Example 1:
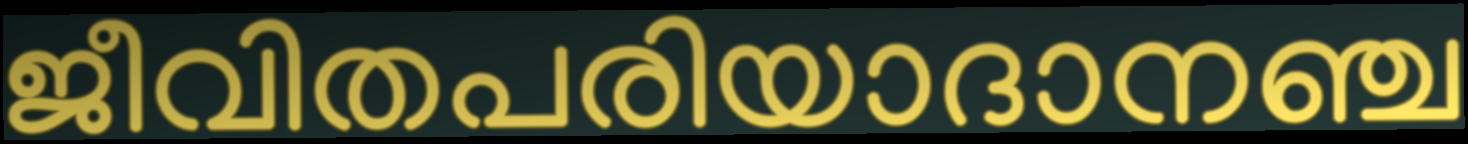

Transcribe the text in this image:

ജീവിതപരിയാദാനഞ്ച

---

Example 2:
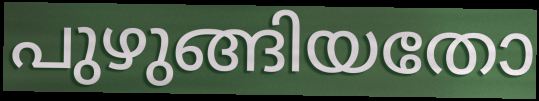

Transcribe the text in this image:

പുഴുങ്ങിയതോ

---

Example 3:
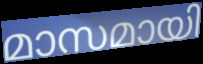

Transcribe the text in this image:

മാസമായി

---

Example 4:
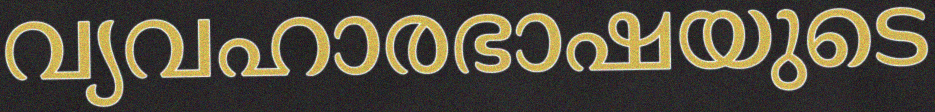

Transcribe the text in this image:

വ്യവഹാരഭാഷയുടെ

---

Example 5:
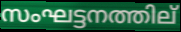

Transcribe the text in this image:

സംഘട്ടനത്തില്